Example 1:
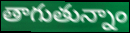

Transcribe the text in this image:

తాగుతున్నాం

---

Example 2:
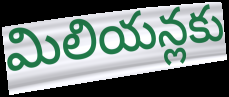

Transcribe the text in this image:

మిలియన్లకు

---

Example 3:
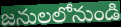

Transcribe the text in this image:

జనులలోనుండి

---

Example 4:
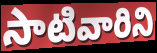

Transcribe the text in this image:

సాటివారిని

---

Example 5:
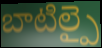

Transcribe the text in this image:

బాటిల్పై